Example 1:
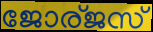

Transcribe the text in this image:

ജോര്ജസ്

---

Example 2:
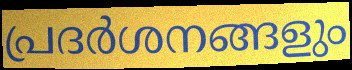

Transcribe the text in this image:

പ്രദർശനങ്ങളും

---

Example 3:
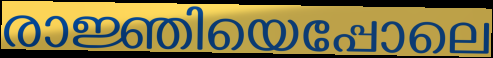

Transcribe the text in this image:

രാജ്ഞിയെപ്പോലെ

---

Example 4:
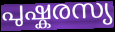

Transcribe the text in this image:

പുഷ്കരസ്യ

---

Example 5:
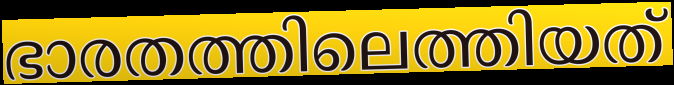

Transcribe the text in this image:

ഭാരതത്തിലെത്തിയത്